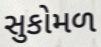
સુકોમળ